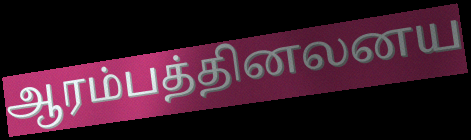
ஆரம்பத்தினலனய